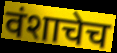
वंशाचेच